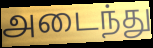
அடைந்து